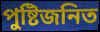
পুষ্টিজনিত